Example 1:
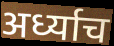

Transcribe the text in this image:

अर्ध्याच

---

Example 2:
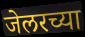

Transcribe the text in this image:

जेलरच्या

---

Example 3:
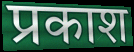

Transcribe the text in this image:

प्रकाश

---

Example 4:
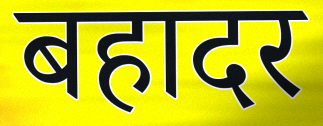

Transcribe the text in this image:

बहादर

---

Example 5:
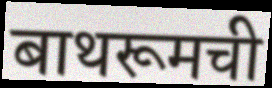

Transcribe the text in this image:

बाथरूमची